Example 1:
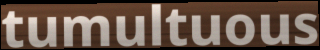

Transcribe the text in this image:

tumultuous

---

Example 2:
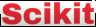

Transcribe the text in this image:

Scikit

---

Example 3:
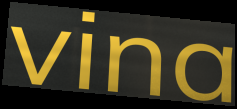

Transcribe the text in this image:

vina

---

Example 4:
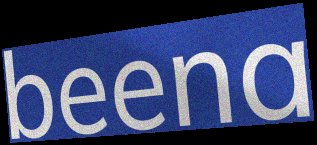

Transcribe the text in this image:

beena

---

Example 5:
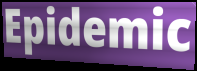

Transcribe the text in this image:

Epidemic